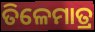
ତିଳେମାତ୍ର